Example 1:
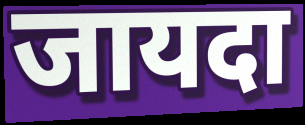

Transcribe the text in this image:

जायदा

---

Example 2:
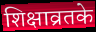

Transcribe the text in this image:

शिक्षाव्रतके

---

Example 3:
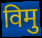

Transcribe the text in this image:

विमु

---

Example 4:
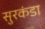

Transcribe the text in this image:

सुरकंडा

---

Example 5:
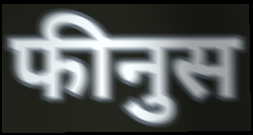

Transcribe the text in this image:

फीनुस